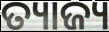
ତ୍ୟାଜ୍ୟ